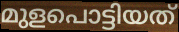
മുളപൊട്ടിയത്